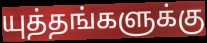
யுத்தங்களுக்கு